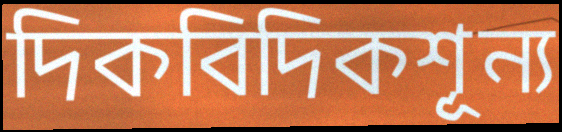
দিকবিদিকশূন্য